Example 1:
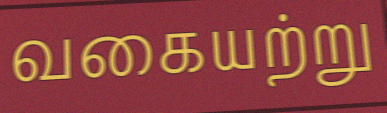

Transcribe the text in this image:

வகையற்று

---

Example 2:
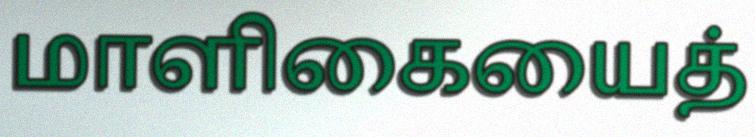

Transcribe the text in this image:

மாளிகையைத்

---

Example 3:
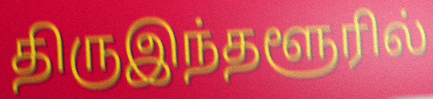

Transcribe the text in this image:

திருஇந்தளூரில்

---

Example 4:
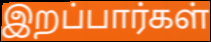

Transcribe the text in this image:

இறப்பார்கள்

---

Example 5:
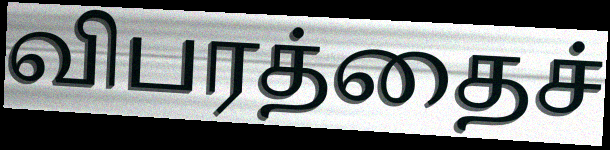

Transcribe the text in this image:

விபரத்தைச்